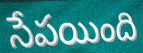
సేపయింది